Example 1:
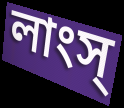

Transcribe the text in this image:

লাংস্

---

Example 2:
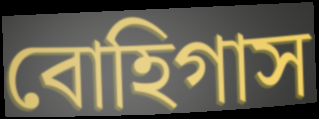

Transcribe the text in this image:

বোহিগাস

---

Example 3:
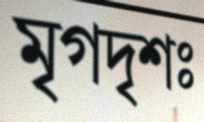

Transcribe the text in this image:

মৃগদৃশঃ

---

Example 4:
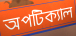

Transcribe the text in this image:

অপটিক্যাল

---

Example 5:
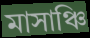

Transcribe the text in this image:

মাসাঞ্চি